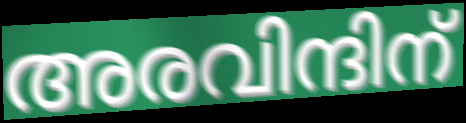
അരവിന്ദിന്